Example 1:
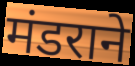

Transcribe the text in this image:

मंडराने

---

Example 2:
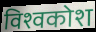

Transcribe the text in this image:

विश्वकोश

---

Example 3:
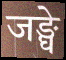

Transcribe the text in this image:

जङ्घे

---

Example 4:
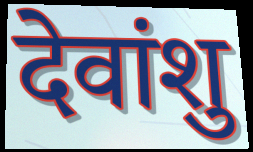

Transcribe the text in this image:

देवांशु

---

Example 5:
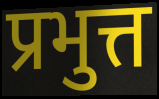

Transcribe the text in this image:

प्रभुत्त